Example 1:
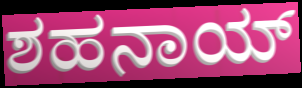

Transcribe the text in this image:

ಶಹನಾಯ್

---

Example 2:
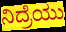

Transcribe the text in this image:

ನಿದ್ರೆಯು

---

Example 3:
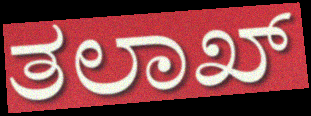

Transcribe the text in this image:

ತಲಾಖ್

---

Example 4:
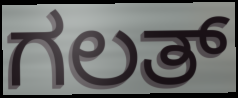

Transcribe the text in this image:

ಗಲತ್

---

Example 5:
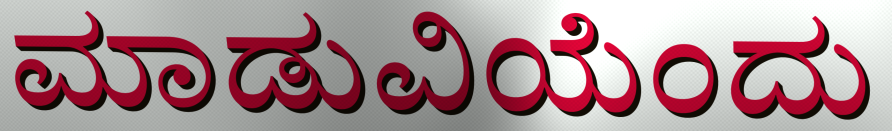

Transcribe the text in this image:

ಮಾಡುವಿಯೆಂದು